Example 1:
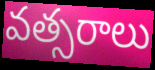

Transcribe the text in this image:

వత్సరాలు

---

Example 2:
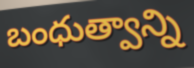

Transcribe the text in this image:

బంధుత్వాన్ని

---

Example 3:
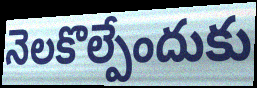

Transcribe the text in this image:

నెలకొల్పేందుకు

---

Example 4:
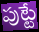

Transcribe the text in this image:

పుట్టే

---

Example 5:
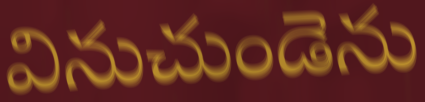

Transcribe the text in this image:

వినుచుండెను